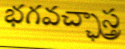
భగవచ్ఛాస్త్ర